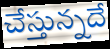
చేస్తున్నదే